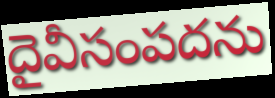
దైవీసంపదను